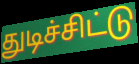
துடிச்சிட்டு